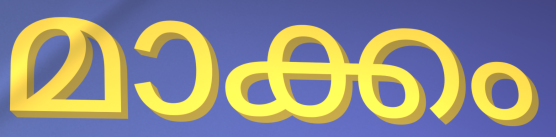
മാക്കം